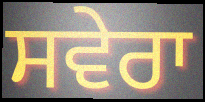
ਸਵੇਰਾ